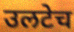
उलटेच